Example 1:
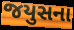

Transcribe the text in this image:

જયુસના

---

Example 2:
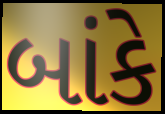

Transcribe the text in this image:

બાંકે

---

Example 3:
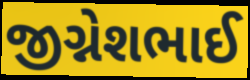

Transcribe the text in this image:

જીગ્નેશભાઈ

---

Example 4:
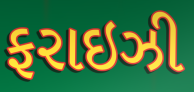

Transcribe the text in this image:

ફરાઇઝી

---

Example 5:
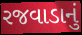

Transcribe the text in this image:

રજવાડાનું